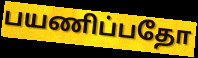
பயணிப்பதோ